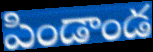
పిండాండ